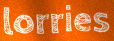
lorries